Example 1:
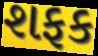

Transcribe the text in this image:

શફક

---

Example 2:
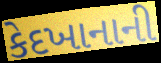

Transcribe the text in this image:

કેદખાનાની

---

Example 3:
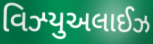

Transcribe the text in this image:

વિઝ્યુઅલાઈઝ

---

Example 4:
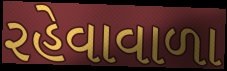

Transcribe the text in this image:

રહેવાવાળા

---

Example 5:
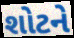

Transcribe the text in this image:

શોટને